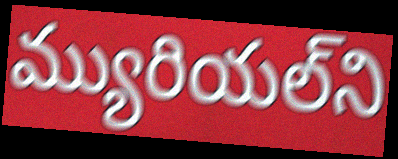
మ్యురియల్‌ని